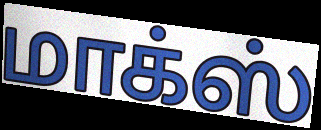
மாக்ஸ்